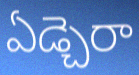
ఏడ్చెరా